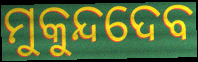
ମୁକୁନ୍ଦଦେବ